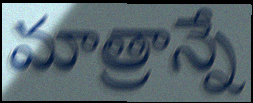
మాత్రాన్నే